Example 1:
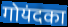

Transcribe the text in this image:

गोयंदका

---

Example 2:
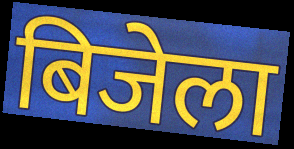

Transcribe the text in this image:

बिजेला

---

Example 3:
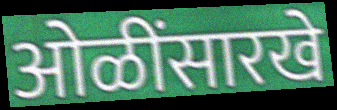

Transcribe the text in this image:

ओळींसारखे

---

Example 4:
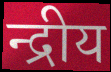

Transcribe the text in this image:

न्द्रीय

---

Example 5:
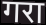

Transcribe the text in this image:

गरा